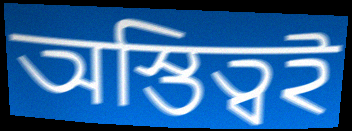
অস্তিত্বই